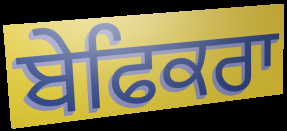
ਬੇਫਿਕਰਾ